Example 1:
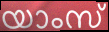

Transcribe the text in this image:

യാംസ്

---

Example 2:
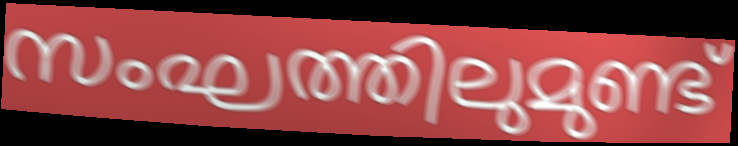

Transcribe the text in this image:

സംഘത്തിലുമുണ്ട്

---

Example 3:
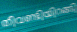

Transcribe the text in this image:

തീവണ്ടിയിറങ്ങി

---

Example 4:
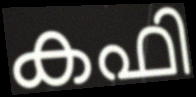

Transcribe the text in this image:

കഫി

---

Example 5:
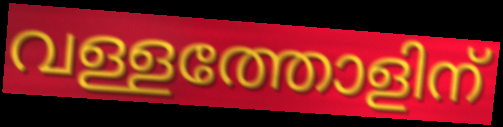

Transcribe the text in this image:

വള്ളത്തോളിന്